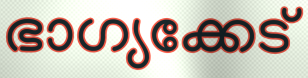
ഭാഗ്യക്കേട്